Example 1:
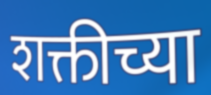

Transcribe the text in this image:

शक्तीच्या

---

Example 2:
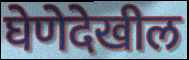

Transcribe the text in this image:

घेणेदेखील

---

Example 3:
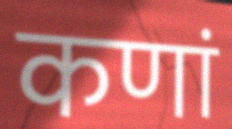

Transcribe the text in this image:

कणां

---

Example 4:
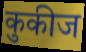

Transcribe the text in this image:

कुकीज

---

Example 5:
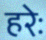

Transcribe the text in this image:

हरेः